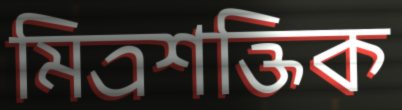
মিত্ৰশক্তিক